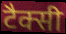
टैक्सी